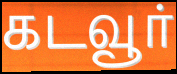
கடவூர்